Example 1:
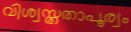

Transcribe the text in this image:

വിശ്വസ്തതാപൂര്വം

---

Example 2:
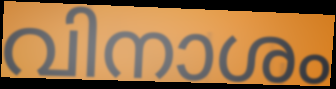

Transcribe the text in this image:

വിനാശം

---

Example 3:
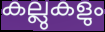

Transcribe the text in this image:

കല്ലുകളും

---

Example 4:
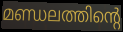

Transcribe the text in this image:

മണ്ഡലത്തിന്റെ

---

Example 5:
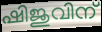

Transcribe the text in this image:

ഷിജുവിന്